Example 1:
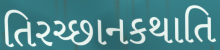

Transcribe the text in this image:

તિરચ્છાનકથાતિ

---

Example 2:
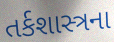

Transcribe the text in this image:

તર્કશાસ્ત્રના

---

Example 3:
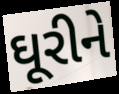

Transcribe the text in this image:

ઘૂરીને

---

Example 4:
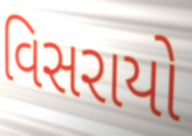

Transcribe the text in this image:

વિસરાયો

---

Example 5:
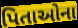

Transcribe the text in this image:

પિતાઓના